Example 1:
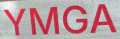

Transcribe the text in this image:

YMGA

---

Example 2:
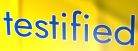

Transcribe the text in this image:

testified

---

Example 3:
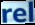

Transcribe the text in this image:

rel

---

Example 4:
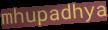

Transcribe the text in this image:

mhupadhya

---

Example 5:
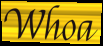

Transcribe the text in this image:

Whoa